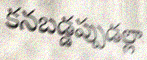
కనబడ్డప్పుడల్లా